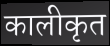
कालीकृत